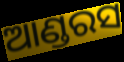
ଆଣ୍ଡରସ